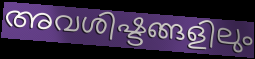
അവശിഷ്ടങ്ങളിലും